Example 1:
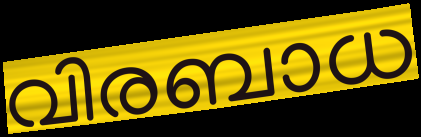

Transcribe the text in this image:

വിരബാധ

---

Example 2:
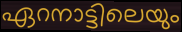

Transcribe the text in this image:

ഏറനാട്ടിലെയും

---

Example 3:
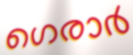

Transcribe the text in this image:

ഗെരാർ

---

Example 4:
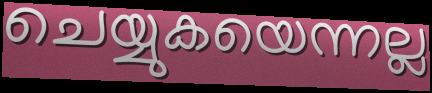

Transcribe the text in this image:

ചെയ്യുകയെന്നല്ല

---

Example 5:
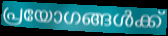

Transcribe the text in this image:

പ്രയോഗങ്ങൾക്ക്